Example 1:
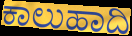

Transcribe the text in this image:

ಕಾಲುಹಾದಿ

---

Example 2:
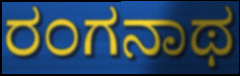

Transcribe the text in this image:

ರಂಗನಾಥ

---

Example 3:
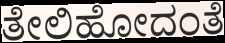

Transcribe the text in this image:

ತೇಲಿಹೋದಂತೆ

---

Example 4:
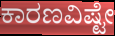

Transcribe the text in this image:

ಕಾರಣವಿಷ್ಟೇ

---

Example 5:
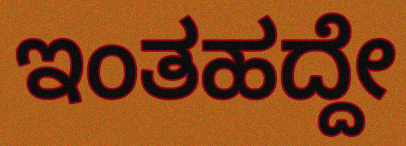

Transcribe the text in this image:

ಇಂತಹದ್ದೇ